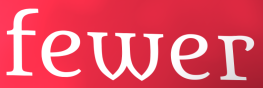
fewer